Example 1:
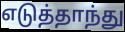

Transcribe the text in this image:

எடுத்தாந்து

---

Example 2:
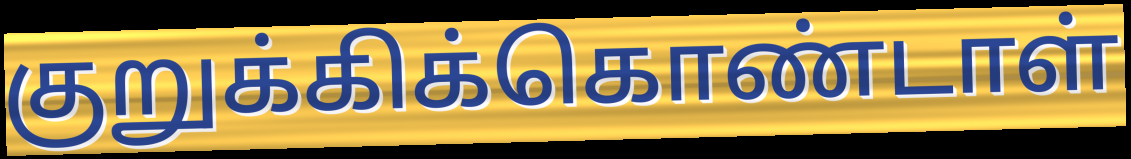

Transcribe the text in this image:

குறுக்கிக்கொண்டாள்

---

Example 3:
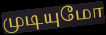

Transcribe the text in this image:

முடியுமோ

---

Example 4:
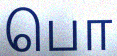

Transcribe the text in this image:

பொ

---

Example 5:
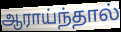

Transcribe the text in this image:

ஆராய்ந்தால்